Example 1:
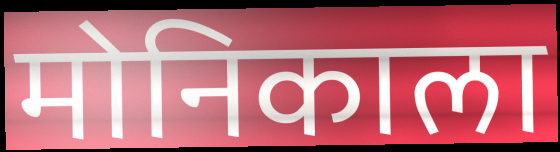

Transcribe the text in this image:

मोनिकाला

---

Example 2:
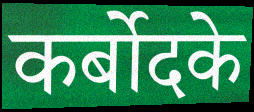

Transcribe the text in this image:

कर्बोदके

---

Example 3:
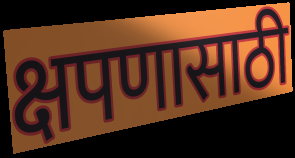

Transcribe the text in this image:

क्षपणासाठी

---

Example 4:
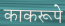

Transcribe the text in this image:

काकरूपे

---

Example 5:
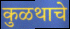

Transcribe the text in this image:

कुळथाचे